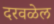
दरवळेल